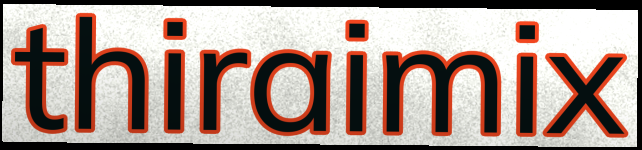
thiraimix